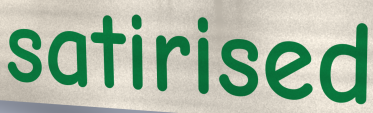
satirised